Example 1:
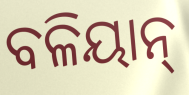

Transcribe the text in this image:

ବଳିୟାନ୍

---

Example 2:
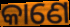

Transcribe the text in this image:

କାଣେ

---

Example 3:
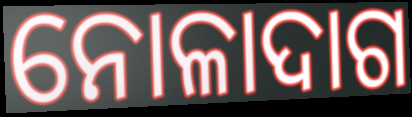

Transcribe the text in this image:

ନୋଳାଦାଗ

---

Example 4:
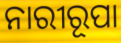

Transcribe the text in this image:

ନାରୀରୂପା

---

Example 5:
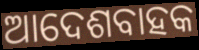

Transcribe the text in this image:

ଆଦେଶବାହକ